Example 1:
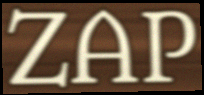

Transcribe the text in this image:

ZAP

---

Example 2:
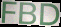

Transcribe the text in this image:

FBD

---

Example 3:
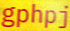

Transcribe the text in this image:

gphpj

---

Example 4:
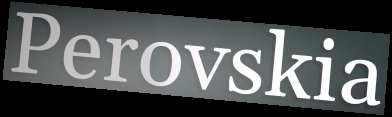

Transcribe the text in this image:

Perovskia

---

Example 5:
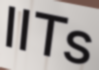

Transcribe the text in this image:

IITs